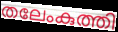
തലേംകുത്തി